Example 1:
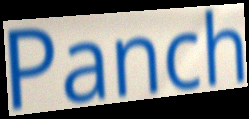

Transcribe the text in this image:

Panch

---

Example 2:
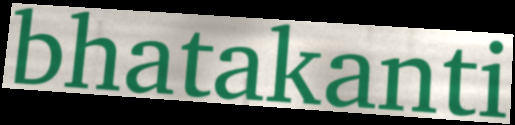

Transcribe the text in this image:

bhatakanti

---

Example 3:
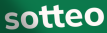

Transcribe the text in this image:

sotteo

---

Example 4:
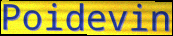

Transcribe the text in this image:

Poidevin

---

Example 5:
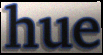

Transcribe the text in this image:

hue